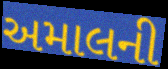
અમાલની